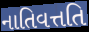
નાતિવત્તતિ